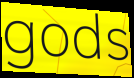
gods